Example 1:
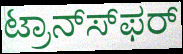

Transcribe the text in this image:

ಟ್ರಾನ್ಸ್‍ಫರ್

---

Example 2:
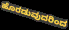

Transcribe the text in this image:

ಹೊರಡುವುದರಿಂದ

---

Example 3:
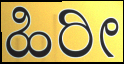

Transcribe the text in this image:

ಹಿರೀ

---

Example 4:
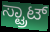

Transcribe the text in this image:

ಸ್ಟ್ರಾಟ್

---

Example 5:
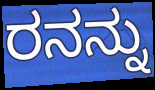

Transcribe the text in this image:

ರನನ್ನು